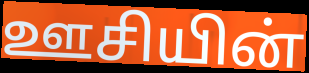
ஊசியின்